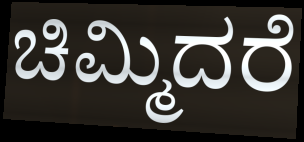
ಚಿಮ್ಮಿದರೆ